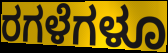
ರಗಳೆಗಳೂ